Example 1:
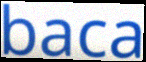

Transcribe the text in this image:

baca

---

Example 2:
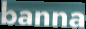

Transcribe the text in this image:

banna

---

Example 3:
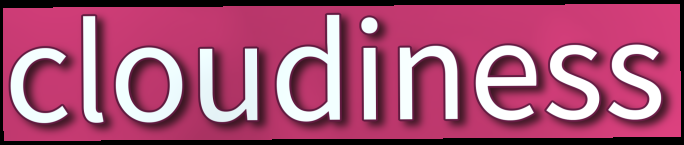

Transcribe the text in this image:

cloudiness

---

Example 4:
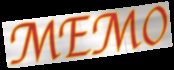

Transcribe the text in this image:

MEMO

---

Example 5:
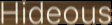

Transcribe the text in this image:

Hideous